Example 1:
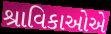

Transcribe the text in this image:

શ્રાવિકાઓએ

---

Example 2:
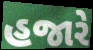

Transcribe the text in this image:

હજારે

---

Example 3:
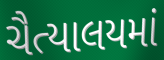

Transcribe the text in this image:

ચૈત્યાલયમાં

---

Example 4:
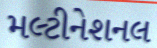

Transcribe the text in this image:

મલ્ટીનેશનલ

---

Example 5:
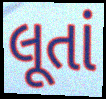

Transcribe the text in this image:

લૂતાં